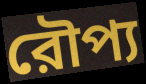
রৌপ্য